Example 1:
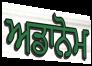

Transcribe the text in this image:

ਅਡਾਨੋਮ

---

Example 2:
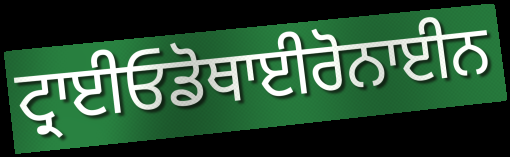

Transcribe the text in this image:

ਟ੍ਰਾਈਓਡੋਥਾਈਰੋਨਾਈਨ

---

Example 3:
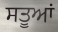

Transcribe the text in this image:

ਸਤੂਆਂ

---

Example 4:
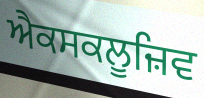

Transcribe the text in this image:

ਐਕਸਕਲੂਜ਼ਿਵ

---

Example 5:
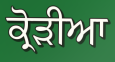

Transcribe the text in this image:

ਕ੍ਰੋੜੀਆ